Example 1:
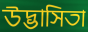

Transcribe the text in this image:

উদ্ভাসিতা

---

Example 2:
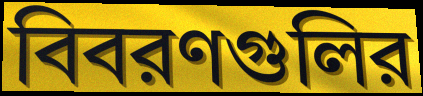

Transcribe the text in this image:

বিবরণগুলির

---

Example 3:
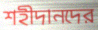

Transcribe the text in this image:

শহীদানদের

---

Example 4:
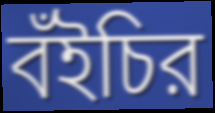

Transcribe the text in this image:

বঁইচির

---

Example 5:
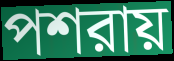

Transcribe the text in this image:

পশরায়